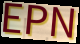
EPN